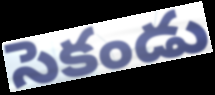
సెకండు